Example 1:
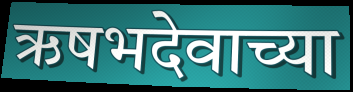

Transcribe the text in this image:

ऋषभदेवाच्या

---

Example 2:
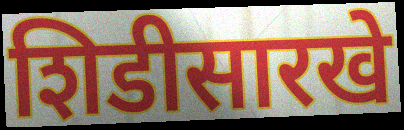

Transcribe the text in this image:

शिडीसारखे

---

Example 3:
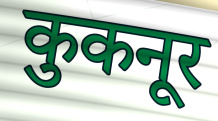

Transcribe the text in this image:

कुकनूर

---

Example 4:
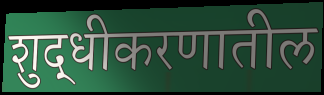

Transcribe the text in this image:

शुद्धीकरणातील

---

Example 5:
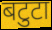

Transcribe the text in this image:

बटुटा